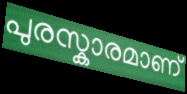
പുരസ്കാരമാണ്